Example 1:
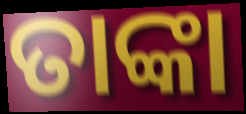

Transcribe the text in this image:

ତାଙ୍କା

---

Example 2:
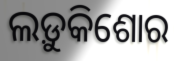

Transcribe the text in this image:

ଲଡ଼ୁକିଶୋର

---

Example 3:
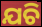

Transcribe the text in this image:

ଯଚି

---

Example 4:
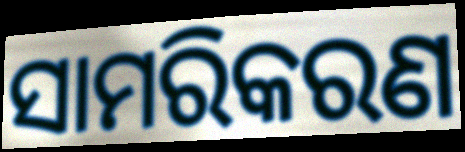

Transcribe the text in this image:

ସାମରିକରଣ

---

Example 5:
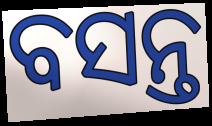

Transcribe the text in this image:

ବସନ୍ତ